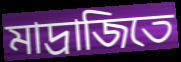
মাদ্রাজিতে